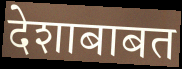
देशाबाबत